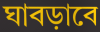
ঘাবড়াবে